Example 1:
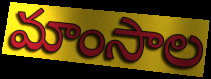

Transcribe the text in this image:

మాంసాల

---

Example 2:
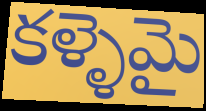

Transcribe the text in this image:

కళ్ళెమై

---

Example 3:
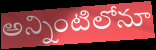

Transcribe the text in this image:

అన్నింటిలోనూ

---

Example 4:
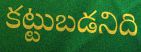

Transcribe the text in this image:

కట్టుబడనిది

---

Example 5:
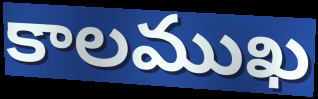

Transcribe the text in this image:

కాలముఖ